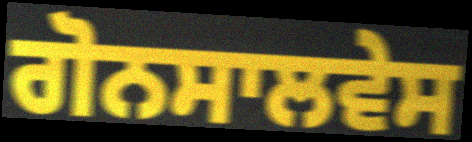
ਗੋਨਸਾਲਵੇਸ